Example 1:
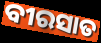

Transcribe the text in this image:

ବୀରସାତ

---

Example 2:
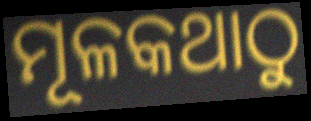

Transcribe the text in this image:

ମୂଳକଥାଠୁ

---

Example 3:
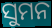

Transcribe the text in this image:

ସୁମନ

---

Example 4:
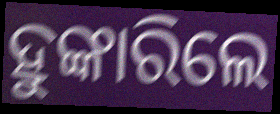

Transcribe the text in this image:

ହୁଙ୍କାରିଲେ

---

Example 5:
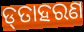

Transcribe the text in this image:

ଡ୍‌ତାହରଣ